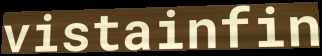
vistainfin